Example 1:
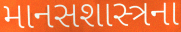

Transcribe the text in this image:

માનસશાસ્ત્રના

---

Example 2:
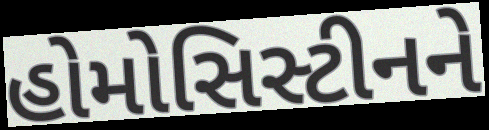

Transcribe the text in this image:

હોમોસિસ્ટીનને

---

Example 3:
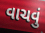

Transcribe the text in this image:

વાચવું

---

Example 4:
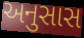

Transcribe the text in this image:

અનુસાસ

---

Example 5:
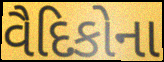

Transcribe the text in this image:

વૈદિકોના